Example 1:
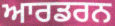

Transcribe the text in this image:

ਆਰਡਰਨ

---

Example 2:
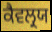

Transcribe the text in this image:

ਕੈਵਲ੍ਰਯ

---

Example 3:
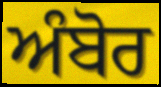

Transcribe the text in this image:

ਅੰਬੋਰ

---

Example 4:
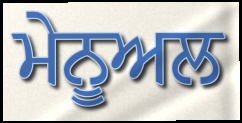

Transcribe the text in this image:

ਮੇਨੂਅਲ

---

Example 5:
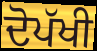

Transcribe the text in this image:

ਦੋਪੱਖੀ